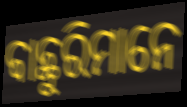
ବାଛୁରିମାନେ